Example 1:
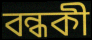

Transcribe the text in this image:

বন্ধকী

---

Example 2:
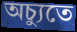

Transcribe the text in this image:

অচ্যুতে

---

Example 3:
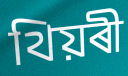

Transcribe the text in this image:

থিয়ৰী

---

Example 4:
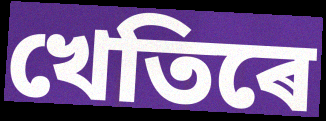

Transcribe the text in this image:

খেতিৰে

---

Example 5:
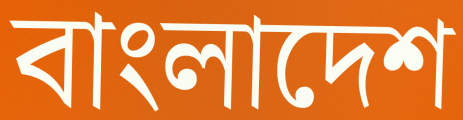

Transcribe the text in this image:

বাংলাদেশ